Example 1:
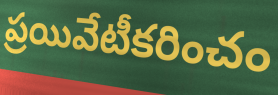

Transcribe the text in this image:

ప్రయివేటీకరించం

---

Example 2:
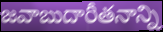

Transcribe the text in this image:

జవాబుదారీతనాన్ని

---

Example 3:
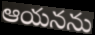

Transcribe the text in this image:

ఆయనను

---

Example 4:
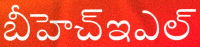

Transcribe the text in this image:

బీహెచ్ఇఎల్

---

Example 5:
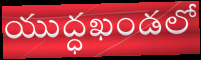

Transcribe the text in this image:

యుద్ధఖండలో